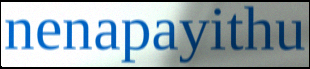
nenapayithu